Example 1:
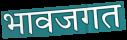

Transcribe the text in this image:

भावजगत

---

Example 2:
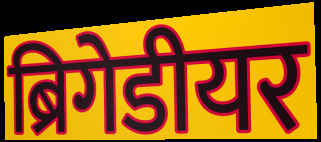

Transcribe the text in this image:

ब्रिगेडीयर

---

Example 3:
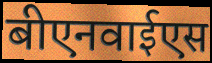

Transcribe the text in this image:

बीएनवाईएस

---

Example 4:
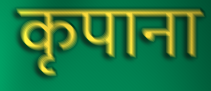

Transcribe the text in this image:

कृपाना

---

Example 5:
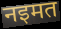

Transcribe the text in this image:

नइमत